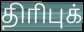
திரிபுக்